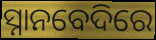
ସ୍ନାନବେଦିରେ